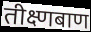
तीक्ष्णबाण